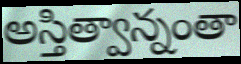
అస్తిత్వాన్నంతా